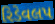
રિડેવલપ